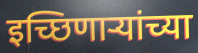
इच्छिणार्‍यांच्या